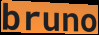
bruno